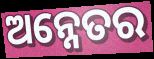
ଅନ୍ନେତର